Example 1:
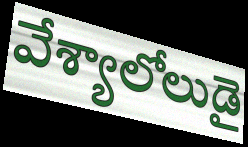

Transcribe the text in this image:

వేశ్యాలోలుడై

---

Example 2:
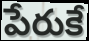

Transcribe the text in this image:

పేరుకే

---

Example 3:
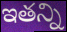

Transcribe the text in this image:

ఇతన్ని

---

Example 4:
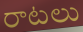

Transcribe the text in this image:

రాటలు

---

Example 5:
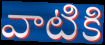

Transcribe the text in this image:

వాటికి